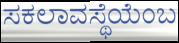
ಸಕಲಾವಸ್ಥೆಯೆಂಬ